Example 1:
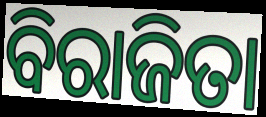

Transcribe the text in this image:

ବିରାଜିତା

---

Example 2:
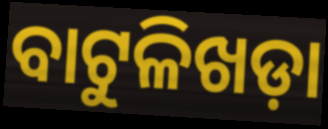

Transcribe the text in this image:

ବାଟୁଳିଖଡ଼ା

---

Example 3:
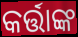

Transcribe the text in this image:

କର୍ତ୍ତାଙ୍କ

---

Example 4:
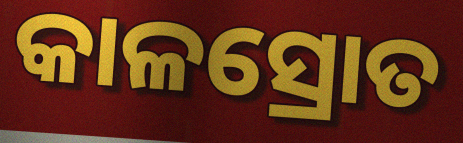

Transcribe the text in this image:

କାଳସ୍ରୋତ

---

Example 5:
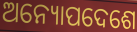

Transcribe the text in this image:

ଅନ୍ୟୋପଦେଶେ